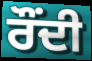
ਰੌਂਦੀ